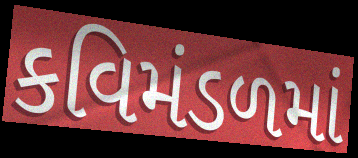
કવિમંડળમાં